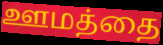
ஊமத்தை